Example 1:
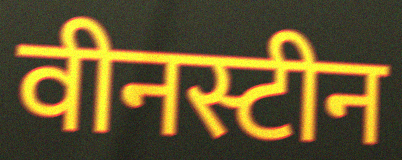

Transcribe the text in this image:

वीनस्टीन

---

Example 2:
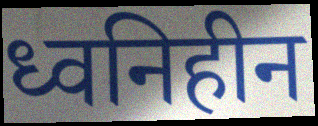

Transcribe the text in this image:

ध्वनिहीन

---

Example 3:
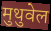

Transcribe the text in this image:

मुथुवेल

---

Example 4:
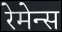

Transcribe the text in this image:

रेमेन्स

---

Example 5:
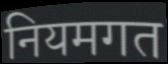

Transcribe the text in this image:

नियमगत